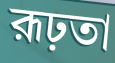
রূঢ়তা